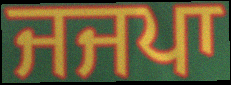
ਜਜਪਾ